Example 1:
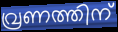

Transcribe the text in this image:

വ്രണത്തിന്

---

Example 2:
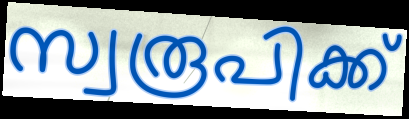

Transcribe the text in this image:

സ്വരൂപിക്ക്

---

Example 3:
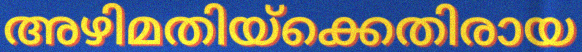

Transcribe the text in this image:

അഴിമതിയ്ക്കെതിരായ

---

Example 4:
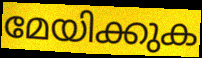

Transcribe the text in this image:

മേയിക്കുക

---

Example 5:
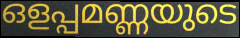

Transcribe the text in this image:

ഒളപ്പമണ്ണയുടെ